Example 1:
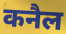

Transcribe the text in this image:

कनैल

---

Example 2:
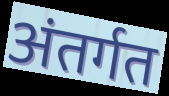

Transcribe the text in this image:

अंतर्गत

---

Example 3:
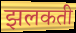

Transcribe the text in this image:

झलकती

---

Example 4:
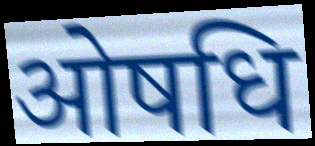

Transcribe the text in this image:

ओषधि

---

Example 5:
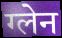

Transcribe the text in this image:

ग्लेन